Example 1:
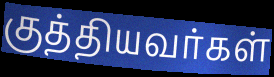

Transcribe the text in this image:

குத்தியவர்கள்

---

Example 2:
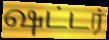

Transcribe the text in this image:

ஷட்டர்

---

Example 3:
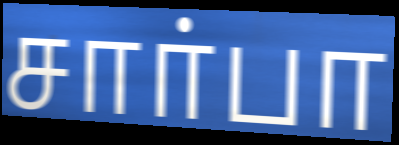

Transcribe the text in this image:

சார்பா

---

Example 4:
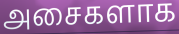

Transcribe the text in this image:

அசைகளாக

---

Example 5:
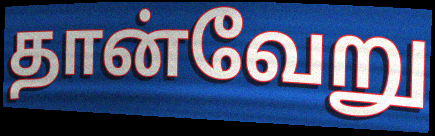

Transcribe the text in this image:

தான்வேறு